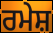
ਰਮੇਸ਼